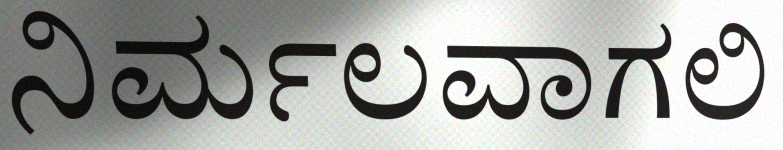
ನಿರ್ಮಲವಾಗಲಿ